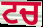
ਟਚ